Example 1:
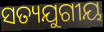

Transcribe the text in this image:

ସତ୍ୟଯୁଗୀୟ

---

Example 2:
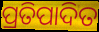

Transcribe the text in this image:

ପ୍ରତିପାଦିତ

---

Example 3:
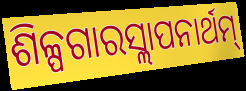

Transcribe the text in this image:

ଶିଳ୍ପଗାରସ୍ଲାପନାର୍ଥମ୍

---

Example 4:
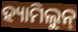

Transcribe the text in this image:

ହ୍ୟାମିଲୁନ୍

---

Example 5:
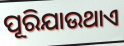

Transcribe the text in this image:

ପୂରିଯାଉଥାଏ